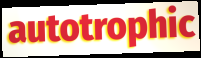
autotrophic